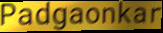
Padgaonkar